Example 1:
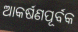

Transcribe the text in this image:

ଆକର୍ଷଣପୂର୍ବକ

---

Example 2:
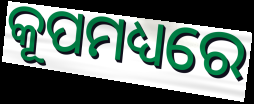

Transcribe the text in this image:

କୂପମଧ୍ୟରେ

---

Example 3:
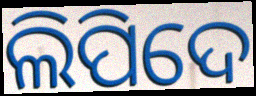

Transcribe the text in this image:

ଲିପିଦେ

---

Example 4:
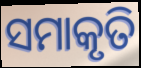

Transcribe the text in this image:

ସମାକୃତି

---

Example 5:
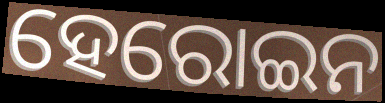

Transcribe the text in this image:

ହେରୋଇନ